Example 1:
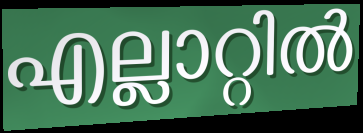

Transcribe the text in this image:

എല്ലാറ്റിൽ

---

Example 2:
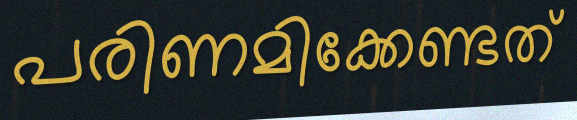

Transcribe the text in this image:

പരിണമിക്കേണ്ടത്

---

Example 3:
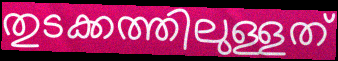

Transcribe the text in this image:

തുടക്കത്തിലുള്ളത്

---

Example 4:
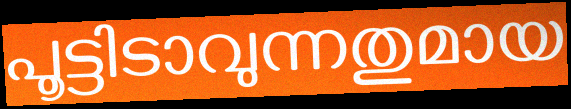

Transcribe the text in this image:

പൂട്ടിടാവുന്നതുമായ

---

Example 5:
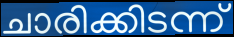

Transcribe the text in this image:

ചാരിക്കിടന്ന്